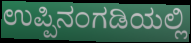
ಉಪ್ಪಿನಂಗಡಿಯಲ್ಲಿ